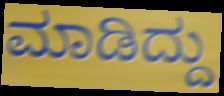
ಮಾಡಿದ್ದು